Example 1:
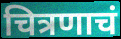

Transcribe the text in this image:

चित्रणाचं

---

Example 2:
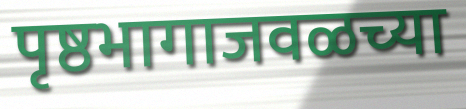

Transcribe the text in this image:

पृष्ठभागाजवळच्या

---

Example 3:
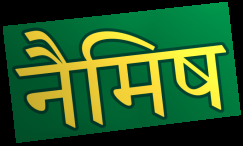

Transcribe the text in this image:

नैमिष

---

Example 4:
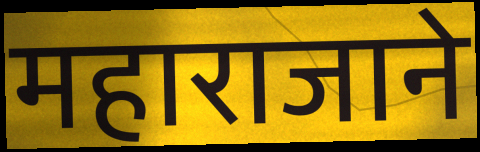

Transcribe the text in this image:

महाराजाने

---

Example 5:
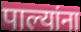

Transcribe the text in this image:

पाल्यांना